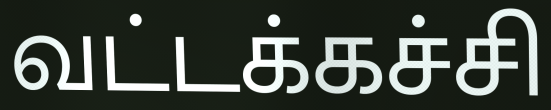
வட்டக்கச்சி